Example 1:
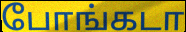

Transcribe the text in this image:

போங்கடா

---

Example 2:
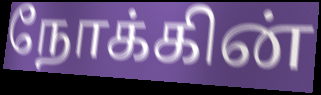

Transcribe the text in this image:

நோக்கின்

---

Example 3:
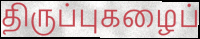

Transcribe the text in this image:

திருப்புகழைப்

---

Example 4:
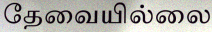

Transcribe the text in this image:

தேவையில்லை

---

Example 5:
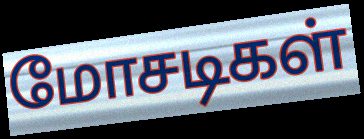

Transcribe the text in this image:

மோசடிகள்